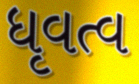
ધૃવત્વ